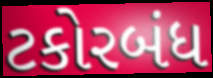
ટકોરબંધ